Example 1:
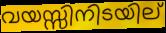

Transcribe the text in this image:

വയസ്സിനിടയില്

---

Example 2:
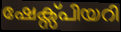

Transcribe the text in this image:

ഷേക്സ്പിയറി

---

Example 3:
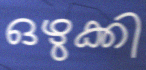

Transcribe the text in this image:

ഒഴുക്കി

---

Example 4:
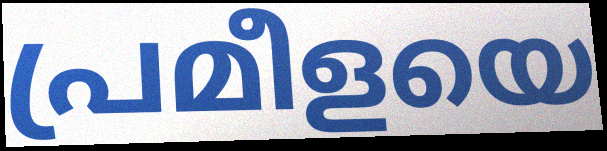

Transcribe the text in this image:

പ്രമീളയെ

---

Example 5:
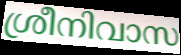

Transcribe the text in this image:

ശ്രീനിവാസ